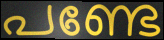
പണ്ടേ